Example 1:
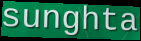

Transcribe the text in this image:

sunghta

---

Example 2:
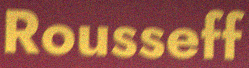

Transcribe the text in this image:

Rousseff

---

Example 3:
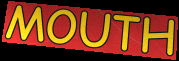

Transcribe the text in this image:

MOUTH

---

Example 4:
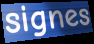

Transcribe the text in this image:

signes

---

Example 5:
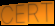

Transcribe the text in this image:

CERT